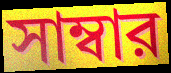
সাম্বার